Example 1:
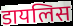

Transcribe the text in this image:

डायलिस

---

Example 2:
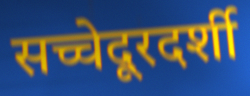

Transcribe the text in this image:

सच्चेदूरदर्शी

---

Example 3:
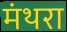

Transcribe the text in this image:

मंथरा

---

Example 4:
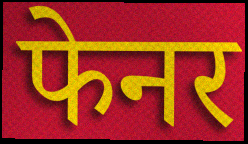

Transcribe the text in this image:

फेनर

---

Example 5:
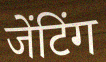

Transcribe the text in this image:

जेंटिंग